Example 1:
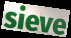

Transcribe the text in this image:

sieve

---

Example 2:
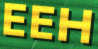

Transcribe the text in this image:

EEH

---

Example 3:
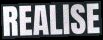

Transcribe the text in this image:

REALISE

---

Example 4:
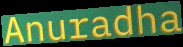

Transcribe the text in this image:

Anuradha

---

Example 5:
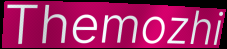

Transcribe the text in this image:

Themozhi